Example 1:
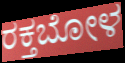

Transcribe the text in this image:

ರಕ್ತಬೋಳ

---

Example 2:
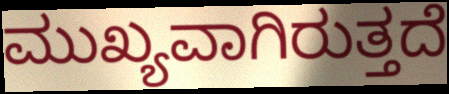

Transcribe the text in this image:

ಮುಖ್ಯವಾಗಿರುತ್ತದೆ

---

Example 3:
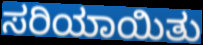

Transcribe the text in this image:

ಸರಿಯಾಯಿತು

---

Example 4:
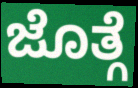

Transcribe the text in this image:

ಜೊತ್ಗೆ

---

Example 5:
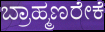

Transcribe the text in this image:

ಬ್ರಾಹ್ಮಣರೇಕೆ